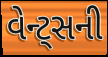
વેન્ટ્સની